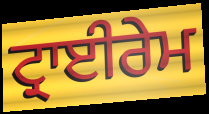
ਟ੍ਰਾਈਰੇਮ